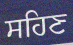
ਸਹਿਣ